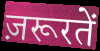
ज़रूरतें